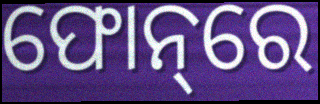
ଫୋନ୍‌ରେ